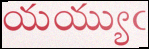
యయ్యుఁ